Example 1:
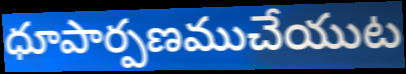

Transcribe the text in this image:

ధూపార్పణముచేయుట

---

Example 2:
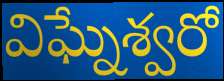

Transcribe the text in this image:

విఘ్నేశ్వరో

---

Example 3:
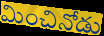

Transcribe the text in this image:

మించినోడు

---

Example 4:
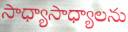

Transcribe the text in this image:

సాధ్యాసాధ్యాలను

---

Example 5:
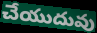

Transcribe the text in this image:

చేయుదువు